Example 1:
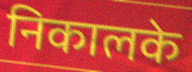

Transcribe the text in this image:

निकालके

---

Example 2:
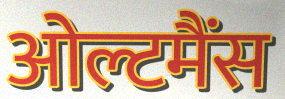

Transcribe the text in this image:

ओल्टमैंस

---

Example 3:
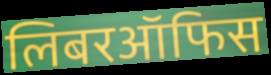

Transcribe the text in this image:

लिबरऑफिस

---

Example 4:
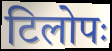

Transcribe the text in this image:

टिलोपः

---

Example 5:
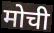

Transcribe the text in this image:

मोची